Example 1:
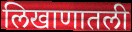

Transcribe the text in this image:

लिखाणातली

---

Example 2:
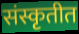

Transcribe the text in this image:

संस्कृतीत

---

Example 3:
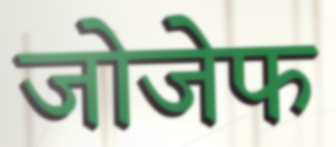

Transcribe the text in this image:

जोजेफ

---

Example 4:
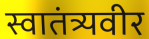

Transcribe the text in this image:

स्वातंत्र्यवीर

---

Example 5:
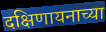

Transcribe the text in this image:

दक्षिणायनाच्या